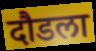
दौडला